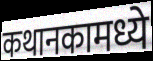
कथानकामध्ये